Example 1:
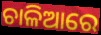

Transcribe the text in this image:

ଚାଳିଆରେ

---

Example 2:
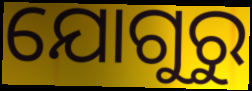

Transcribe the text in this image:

ଯୋଗୁରୁ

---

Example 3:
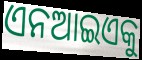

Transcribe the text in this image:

ଏନଆଇଏକୁ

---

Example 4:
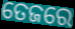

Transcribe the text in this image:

ତେଜରେ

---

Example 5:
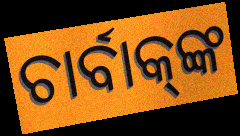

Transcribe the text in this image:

ଚାର୍ବାକ୍‌ଙ୍କ